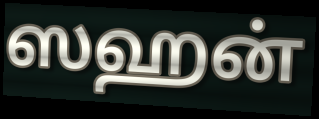
ஸஹன்